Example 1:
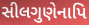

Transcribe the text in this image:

સીલગુણેનાપિ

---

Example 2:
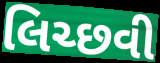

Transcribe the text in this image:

લિચ્છવી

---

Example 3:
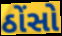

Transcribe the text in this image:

ઠોંસો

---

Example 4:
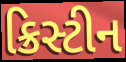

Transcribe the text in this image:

ક્રિસ્ટીન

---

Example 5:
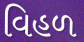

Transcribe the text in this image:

વિહળ